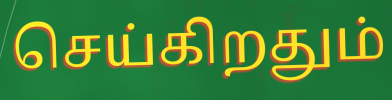
செய்கிறதும்